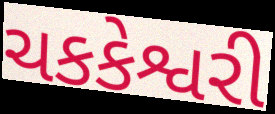
ચકકેશ્વરી